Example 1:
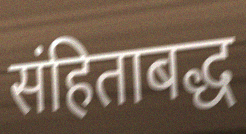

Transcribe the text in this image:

संहिताबद्ध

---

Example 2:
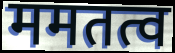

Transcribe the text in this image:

ममतत्व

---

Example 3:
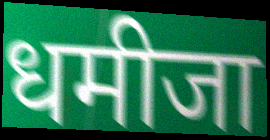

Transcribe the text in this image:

धमीजा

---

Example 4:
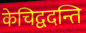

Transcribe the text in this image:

केचिद्वदन्ति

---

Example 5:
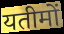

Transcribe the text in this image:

यतीमों